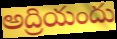
అద్రియందు